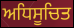
ਅਧਿਸੂਚਿਤ